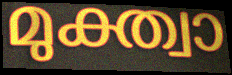
മുക്ത്വാ